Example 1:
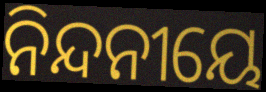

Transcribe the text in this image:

ନିନ୍ଦନୀୟେ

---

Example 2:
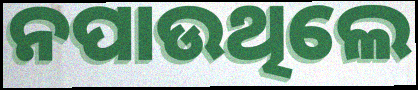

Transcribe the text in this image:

ନପାଉଥିଲେ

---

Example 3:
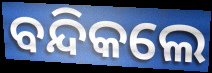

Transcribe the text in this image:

ବନ୍ଦିକଲେ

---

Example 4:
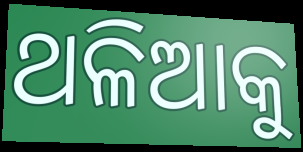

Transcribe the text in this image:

ଥଳିଆକୁ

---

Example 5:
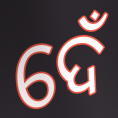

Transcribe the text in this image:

ଦେଁ